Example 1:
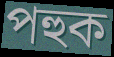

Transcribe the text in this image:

পহুক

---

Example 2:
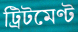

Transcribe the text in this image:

ট্ৰিটমেণ্ট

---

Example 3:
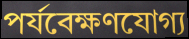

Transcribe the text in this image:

পৰ্যবেক্ষণযোগ্য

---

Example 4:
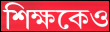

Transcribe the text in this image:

শিক্ষকেও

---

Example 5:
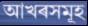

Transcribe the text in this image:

আখৰসমূহ